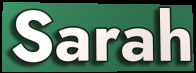
Sarah